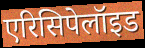
एरिसिपेलॉइड